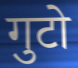
गुटो